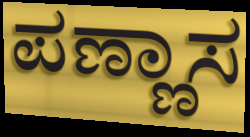
ಪಣ್ಣಾಸ